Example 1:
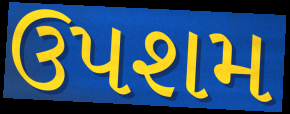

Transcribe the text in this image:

ઉપશમ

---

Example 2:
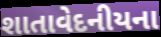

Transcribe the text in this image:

શાતાવેદનીયના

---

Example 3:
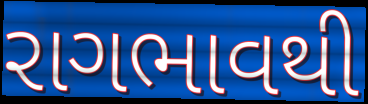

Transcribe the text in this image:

રાગભાવથી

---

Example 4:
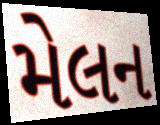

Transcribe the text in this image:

મેલન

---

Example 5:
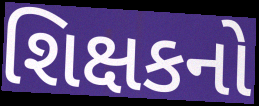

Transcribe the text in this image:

શિક્ષકનો